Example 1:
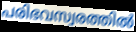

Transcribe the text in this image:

പരിഭവസ്വരത്തിൽ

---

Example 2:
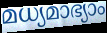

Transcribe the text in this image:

മധ്യമാഭ്യാം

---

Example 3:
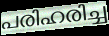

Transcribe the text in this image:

പരിഹരിച്ച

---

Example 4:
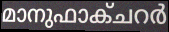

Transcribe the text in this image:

മാനുഫാക്ചറർ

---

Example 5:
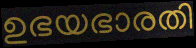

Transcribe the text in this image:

ഉഭയഭാരതി